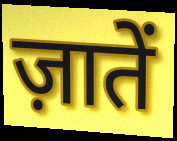
ज़ातें